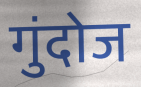
गुंदोज